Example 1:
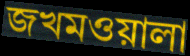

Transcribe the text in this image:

জখমওয়ালা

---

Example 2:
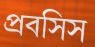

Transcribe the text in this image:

প্রবসিস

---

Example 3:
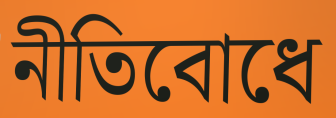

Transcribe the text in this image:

নীতিবোধে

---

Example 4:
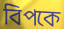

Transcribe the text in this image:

বিপকে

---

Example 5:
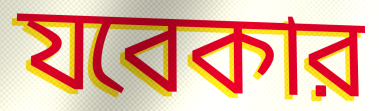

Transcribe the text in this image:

যবেকার